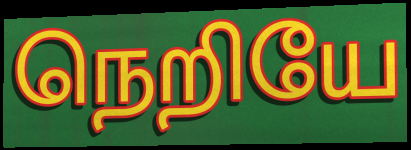
நெறியே